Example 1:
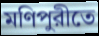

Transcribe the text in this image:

মণিপুরীতে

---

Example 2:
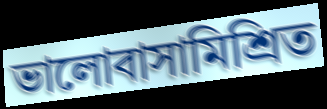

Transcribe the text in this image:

ভালোবাসামিশ্রিত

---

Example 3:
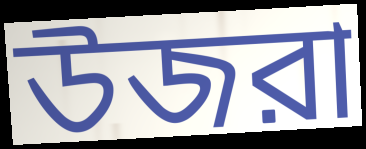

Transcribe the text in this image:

উজরা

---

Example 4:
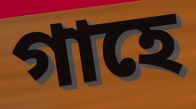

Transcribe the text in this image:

গাহে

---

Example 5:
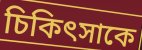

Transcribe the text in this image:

চিকিৎসাকে